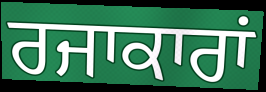
ਰਜਾਕਾਰਾਂ